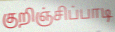
குறிஞ்சிப்பாடி